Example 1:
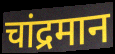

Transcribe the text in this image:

चांद्रमान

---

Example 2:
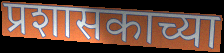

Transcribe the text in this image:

प्रशासकाच्या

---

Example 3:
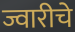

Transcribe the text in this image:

ज्वारीचे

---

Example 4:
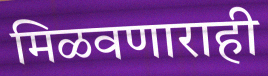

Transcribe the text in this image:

मिळवणाराही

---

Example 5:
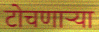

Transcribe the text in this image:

टोचणाऱ्या